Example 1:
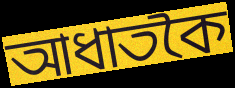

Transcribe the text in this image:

আধাতকৈ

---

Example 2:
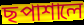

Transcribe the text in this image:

ছপাশালে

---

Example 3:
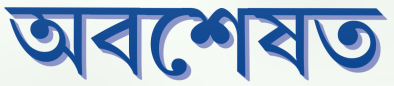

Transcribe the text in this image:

অবশেষত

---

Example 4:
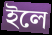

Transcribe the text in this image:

ইলে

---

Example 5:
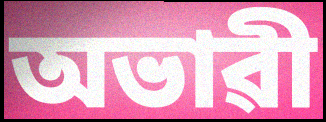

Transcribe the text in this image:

অভাৱী